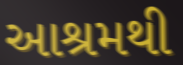
આશ્રમથી